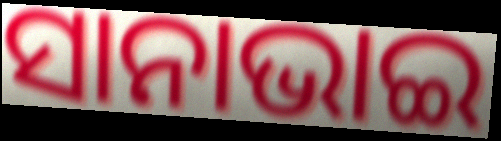
ସାନାଭାଇ